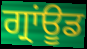
ਗ੍ਰਾਂਊਡ